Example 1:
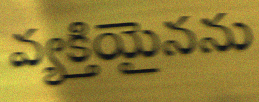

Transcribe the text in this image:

వ్యక్తియైనను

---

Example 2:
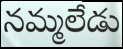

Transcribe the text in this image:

నమ్మలేడు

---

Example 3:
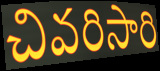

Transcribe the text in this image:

చివరిసారి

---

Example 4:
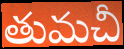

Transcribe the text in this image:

తుమచీ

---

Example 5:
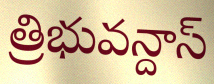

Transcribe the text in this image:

త్రిభువన్దాస్